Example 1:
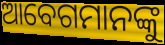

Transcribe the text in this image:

ଆବେଗମାନଙ୍କୁ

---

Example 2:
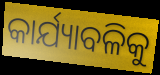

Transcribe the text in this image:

କାର୍ଯ୍ୟାବଳିକୁ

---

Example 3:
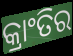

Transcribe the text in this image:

କ୍ରାଂତିର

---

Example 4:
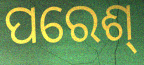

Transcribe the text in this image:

ପରେଶ୍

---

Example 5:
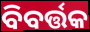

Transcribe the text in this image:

ବିବର୍ତ୍ତକ